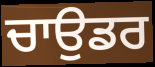
ਚਾਉਡਰ